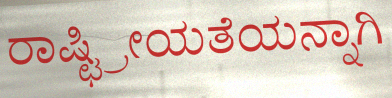
ರಾಷ್ಟ್ರೀಯತೆಯನ್ನಾಗಿ